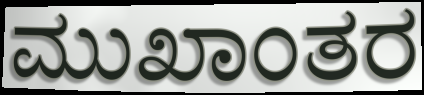
ಮುಖಾಂತರ